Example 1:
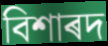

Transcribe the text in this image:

বিশাৰদ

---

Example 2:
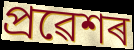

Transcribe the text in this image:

প্ৰৱেশৰ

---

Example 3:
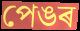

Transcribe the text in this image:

পেঙৰ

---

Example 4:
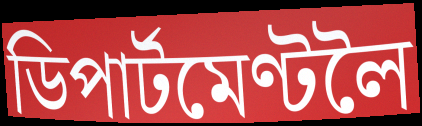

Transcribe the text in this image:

ডিপাৰ্টমেণ্টলৈ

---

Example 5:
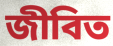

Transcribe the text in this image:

জীবিত